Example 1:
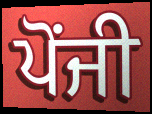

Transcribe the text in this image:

ਪੋਂਜੀ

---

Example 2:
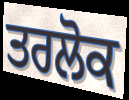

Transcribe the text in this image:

ਤਰਲੋਕ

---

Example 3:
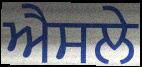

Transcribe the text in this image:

ਐਸਲੇ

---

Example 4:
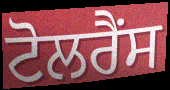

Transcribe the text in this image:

ਟੋਲਰੈਂਸ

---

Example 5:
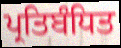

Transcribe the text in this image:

ਪ੍ਰਤਿਬੰਧਿਤ